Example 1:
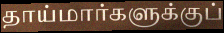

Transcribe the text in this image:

தாய்மார்களுக்குப்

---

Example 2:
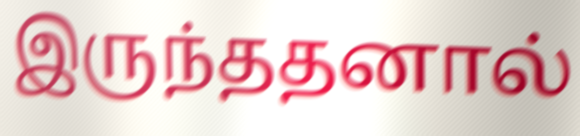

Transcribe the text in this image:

இருந்ததனால்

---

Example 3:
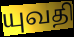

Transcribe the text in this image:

யுவதி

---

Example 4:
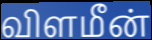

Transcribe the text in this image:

விளமீன்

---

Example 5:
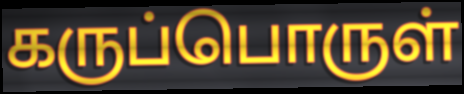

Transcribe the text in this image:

கருப்பொருள்